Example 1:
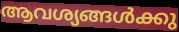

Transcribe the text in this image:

ആവശ്യങ്ങൾക്കു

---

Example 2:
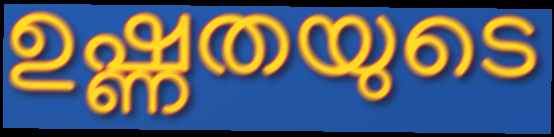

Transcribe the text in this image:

ഉഷ്ണതയുടെ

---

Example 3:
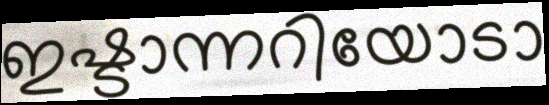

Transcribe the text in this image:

ഇഷ്ടാന്നറിയോടാ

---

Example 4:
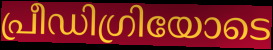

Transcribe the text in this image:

പ്രീഡിഗ്രിയോടെ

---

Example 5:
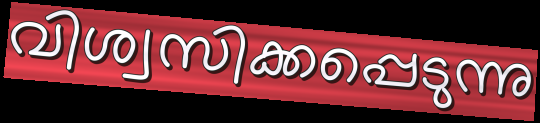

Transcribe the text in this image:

വിശ്വസിക്കപ്പെടുന്നു